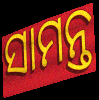
ସାମନ୍ତ